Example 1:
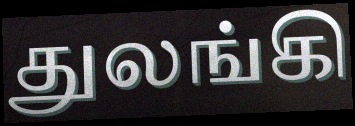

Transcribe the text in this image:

துலங்கி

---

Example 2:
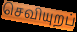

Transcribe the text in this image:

செவியுறப்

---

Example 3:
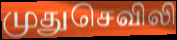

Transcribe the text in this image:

முதுசெவிலி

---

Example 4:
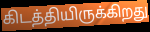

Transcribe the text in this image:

கிடத்தியிருக்கிறது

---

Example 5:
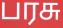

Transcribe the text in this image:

பரசு